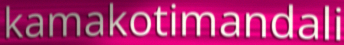
kamakotimandali